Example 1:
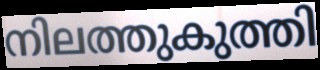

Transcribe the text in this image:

നിലത്തുകുത്തി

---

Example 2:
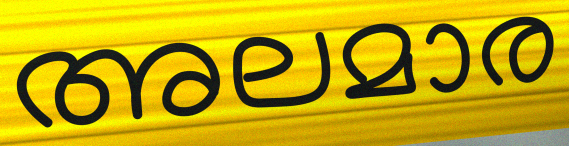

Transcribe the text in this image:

അലമാര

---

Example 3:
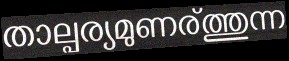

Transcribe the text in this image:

താല്പര്യമുണര്ത്തുന്ന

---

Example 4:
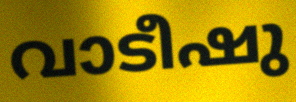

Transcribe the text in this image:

വാടീഷു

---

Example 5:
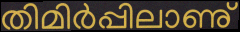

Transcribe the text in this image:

തിമിർപ്പിലാണു്